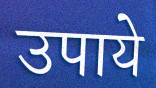
उपाये